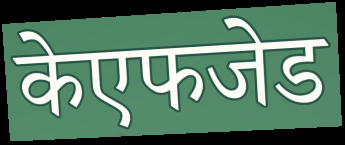
केएफजेड